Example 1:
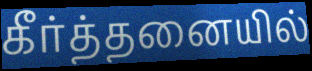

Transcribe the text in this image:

கீர்த்தனையில்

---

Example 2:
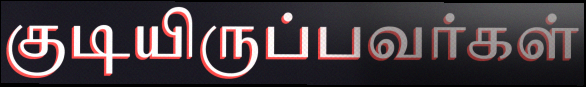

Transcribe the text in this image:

குடியிருப்பவர்கள்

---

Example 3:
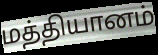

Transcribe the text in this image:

மத்தியானம்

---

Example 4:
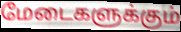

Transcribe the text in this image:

மேடைகளுக்கும்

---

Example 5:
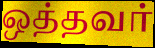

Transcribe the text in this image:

ஒத்தவர்